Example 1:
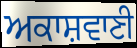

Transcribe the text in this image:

ਅਕਾਸ਼ਵਾਣੀ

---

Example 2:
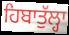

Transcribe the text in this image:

ਹਿਬਾਤੁੱਲ੍ਹਾ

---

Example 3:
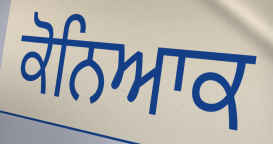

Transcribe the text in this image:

ਕੋਨਿਆਕ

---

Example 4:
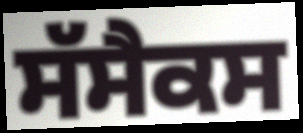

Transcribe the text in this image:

ਸੱਸੈਕਸ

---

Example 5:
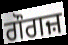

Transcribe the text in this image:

ਗੌਗਜ਼